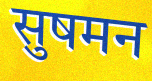
सुषमन